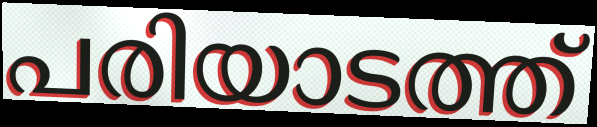
പരിയാടത്ത്